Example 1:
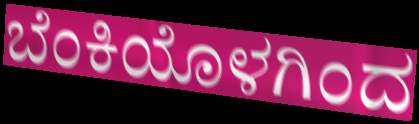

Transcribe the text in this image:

ಬೆಂಕಿಯೊಳಗಿಂದ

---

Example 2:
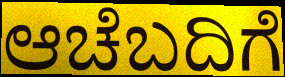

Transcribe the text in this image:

ಆಚೆಬದಿಗೆ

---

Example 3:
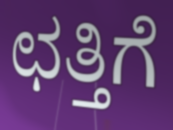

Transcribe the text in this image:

ಛತ್ತಿಗೆ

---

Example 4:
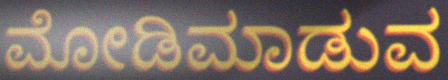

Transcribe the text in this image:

ಮೋಡಿಮಾಡುವ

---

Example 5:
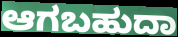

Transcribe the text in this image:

ಆಗಬಹುದಾ